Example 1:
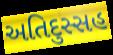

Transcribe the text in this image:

અતિદુસ્સહ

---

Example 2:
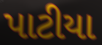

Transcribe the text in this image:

પાટીયા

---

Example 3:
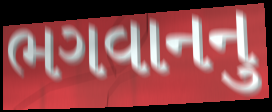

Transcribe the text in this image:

ભગવાનનુ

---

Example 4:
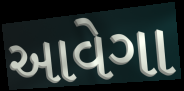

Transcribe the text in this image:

આવેગા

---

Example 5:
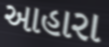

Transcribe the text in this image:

આહારા